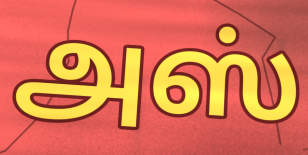
அஸ்